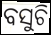
ବସୁଚି